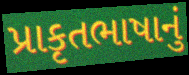
પ્રાકૃતભાષાનું